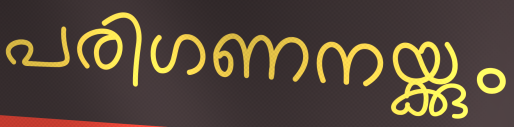
പരിഗണനയ്ക്കും